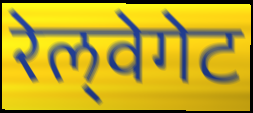
रेल्वेगेट